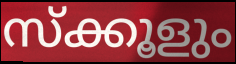
സ്ക്കൂളും